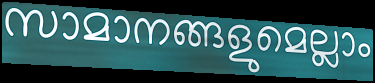
സാമാനങ്ങളുമെല്ലാം